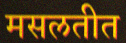
मसलतीत